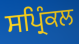
ਸਪ੍ਰਿੰਕਲ